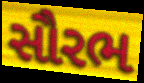
સૌરભ